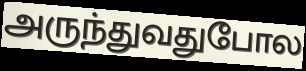
அருந்துவதுபோல